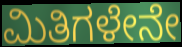
ಮಿತಿಗಳೇನೇ